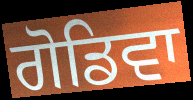
ਗੋਡਿਵਾ